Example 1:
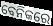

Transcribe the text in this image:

ବେନିକରେ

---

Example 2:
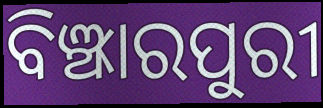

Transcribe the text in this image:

ବିଞ୍ଝାରପୁରୀ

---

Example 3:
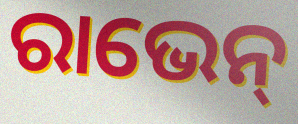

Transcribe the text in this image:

ରାଭେନ୍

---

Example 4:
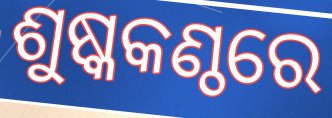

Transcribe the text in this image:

ଶୁଷ୍କକଣ୍ଠରେ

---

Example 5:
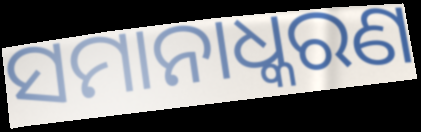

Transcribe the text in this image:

ସମାନାଧ୍କରଣ